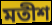
মতীশ